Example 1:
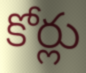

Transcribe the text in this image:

కోర్లు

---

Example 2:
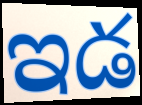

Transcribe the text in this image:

ఇడ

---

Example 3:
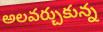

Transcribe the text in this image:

అలవర్చుకున్న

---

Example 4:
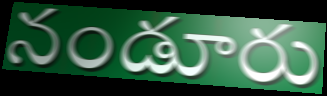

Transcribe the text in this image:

నండూరు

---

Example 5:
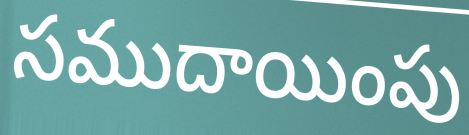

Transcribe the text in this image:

సముదాయింపు